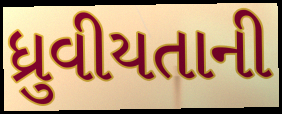
ધ્રુવીયતાની